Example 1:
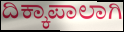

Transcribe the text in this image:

ದಿಕ್ಕಾಪಾಲಾಗಿ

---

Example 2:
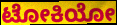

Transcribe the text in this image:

ಟೋಕಿಯೋ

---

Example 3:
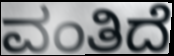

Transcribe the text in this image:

ವಂತಿದೆ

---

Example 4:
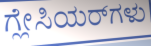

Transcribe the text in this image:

ಗ್ಲೇಸಿಯರ್‌ಗಳು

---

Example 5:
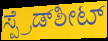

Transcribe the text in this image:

ಸ್ಪ್ರೆಡ್‌ಶೀಟ್